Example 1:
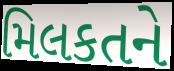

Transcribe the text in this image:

મિલકતને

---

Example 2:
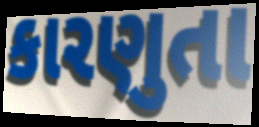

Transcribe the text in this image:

કારણુતા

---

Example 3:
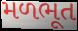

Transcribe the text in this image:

મળભૂત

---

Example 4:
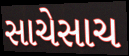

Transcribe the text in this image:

સાચેસાચ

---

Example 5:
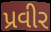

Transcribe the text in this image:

પ્રવીર